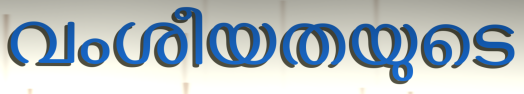
വംശീയതയുടെ